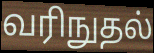
வரிநுதல்